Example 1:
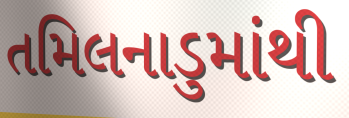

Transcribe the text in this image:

તમિલનાડુમાંથી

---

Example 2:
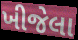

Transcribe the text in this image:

ખીજેલા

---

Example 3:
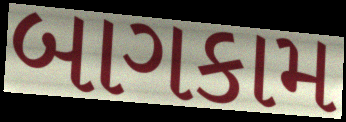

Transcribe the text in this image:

બાગકામ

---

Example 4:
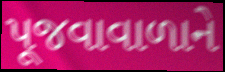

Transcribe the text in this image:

પૂજવાવાળાને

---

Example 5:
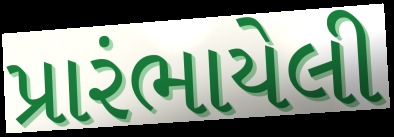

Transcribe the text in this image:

પ્રારંભાયેલી